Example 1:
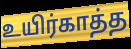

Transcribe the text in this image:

உயிர்காத்த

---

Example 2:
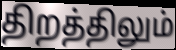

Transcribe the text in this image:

திறத்திலும்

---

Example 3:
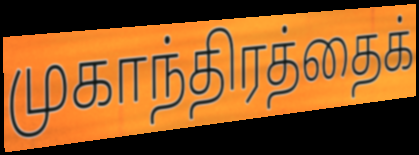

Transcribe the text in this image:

முகாந்திரத்தைக்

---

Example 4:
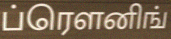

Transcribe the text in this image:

ப்ரௌனிங்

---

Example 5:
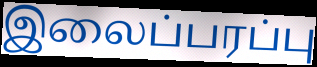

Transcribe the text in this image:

இலைப்பரப்பு